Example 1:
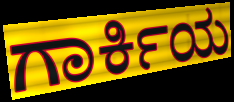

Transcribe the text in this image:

ಗಾರ್ಕಿಯ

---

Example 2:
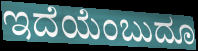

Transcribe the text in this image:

ಇದೆಯೆಂಬುದೂ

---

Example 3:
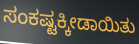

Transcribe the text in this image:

ಸಂಕಷ್ಟಕ್ಕೀಡಾಯಿತು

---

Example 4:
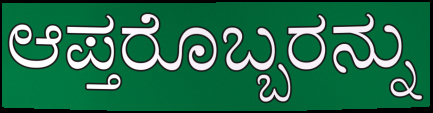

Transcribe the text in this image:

ಆಪ್ತರೊಬ್ಬರನ್ನು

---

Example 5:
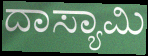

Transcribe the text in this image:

ದಾಸ್ಯಾಮಿ